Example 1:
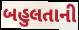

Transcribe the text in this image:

બહુલતાની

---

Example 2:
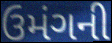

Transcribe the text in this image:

ઉમંગની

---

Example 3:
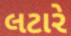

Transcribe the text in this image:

લટારે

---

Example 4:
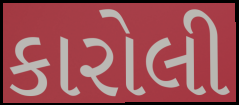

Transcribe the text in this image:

કારોલી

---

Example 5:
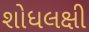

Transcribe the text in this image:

શોધલક્ષી